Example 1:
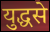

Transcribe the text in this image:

युद्धसे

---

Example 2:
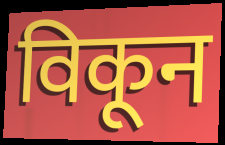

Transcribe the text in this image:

विकून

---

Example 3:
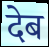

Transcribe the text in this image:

देब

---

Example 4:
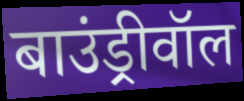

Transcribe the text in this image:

बाउंड्रीवॉल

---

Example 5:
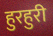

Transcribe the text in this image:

हुरहुरी